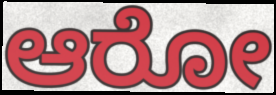
ಆರೋ